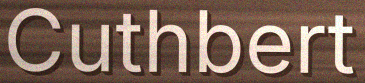
Cuthbert